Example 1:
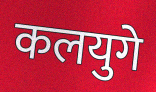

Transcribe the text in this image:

कलयुगे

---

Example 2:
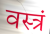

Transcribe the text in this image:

वस्त्रं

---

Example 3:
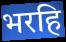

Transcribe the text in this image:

भरहि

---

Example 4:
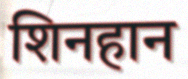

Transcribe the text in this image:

शिनहान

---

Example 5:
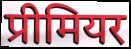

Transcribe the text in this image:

प्रीमियर